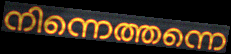
നിന്നെത്തന്നെ